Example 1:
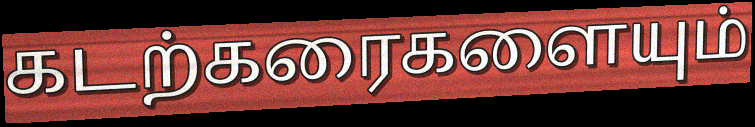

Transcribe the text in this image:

கடற்கரைகளையும்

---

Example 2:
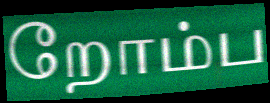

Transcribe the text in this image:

றோம்ப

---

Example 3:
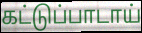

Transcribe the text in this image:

கட்டுப்பாடாய்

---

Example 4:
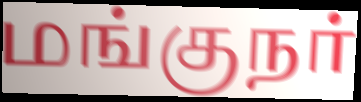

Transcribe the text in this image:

மங்குநர்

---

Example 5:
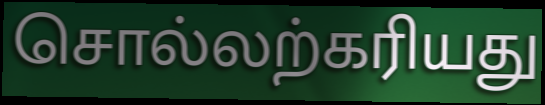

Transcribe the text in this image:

சொல்லற்கரியது